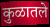
कुळातले